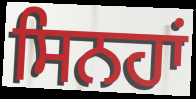
ਸਿਨਹਾਂ